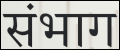
संभाग